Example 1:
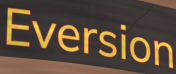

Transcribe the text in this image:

Eversion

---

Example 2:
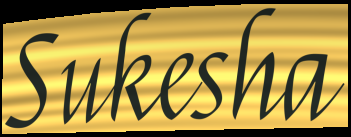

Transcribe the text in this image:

Sukesha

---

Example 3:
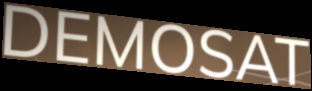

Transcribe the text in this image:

DEMOSAT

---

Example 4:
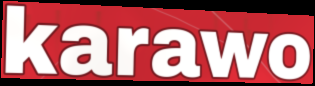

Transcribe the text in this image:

karawo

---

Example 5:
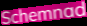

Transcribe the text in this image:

Schemnad